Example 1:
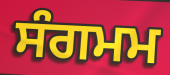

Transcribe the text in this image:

ਸੰਗਮਮ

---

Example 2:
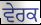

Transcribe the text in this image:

ਵੇਰਕ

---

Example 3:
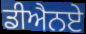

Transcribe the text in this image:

ਡੀਐਨਏ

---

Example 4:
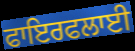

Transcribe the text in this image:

ਫਾਇਰਫਲਾਈ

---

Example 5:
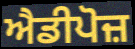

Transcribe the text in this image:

ਐਡੀਪੋਜ਼